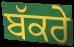
ਬੱਕਰੇ